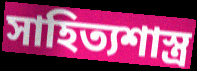
সাহিত্যশাস্ত্র